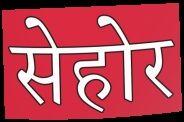
सेहोर